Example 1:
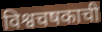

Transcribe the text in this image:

विश्वचषकाची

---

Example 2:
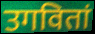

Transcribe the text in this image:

उगवितां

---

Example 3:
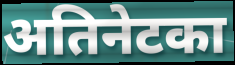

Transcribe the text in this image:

अतिनेटका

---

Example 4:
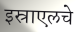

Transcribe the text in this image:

इस्राएलचे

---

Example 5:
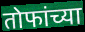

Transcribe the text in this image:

तोफांच्या